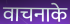
वाचनाके